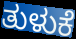
ತುಳುಕೆ